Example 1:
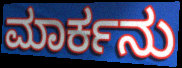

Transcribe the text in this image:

ಮಾರ್ಕನು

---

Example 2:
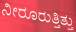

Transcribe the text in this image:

ನೀರೂರುತ್ತಿತ್ತು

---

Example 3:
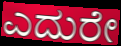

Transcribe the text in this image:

ಎದುರೇ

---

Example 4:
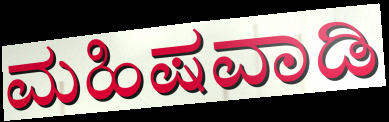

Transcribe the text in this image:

ಮಹಿಷವಾಡಿ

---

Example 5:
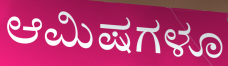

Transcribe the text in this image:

ಆಮಿಷಗಳೂ